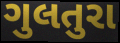
ગુલતુરા